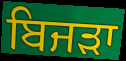
ਬਿਜੜਾ